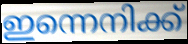
ഇന്നെനിക്ക്